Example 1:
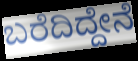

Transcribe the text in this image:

ಬರೆದಿದ್ದೇನೆ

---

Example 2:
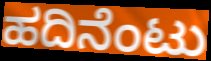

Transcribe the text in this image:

ಹದಿನೆಂಟು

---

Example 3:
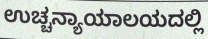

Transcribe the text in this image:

ಉಚ್ಚನ್ಯಾಯಾಲಯದಲ್ಲಿ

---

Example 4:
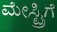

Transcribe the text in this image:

ಮೇಸ್ಟ್ರಿಗೆ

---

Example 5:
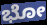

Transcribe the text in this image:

ಭೋ